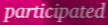
participated